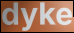
dyke